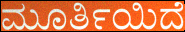
ಮೂರ್ತಿಯಿದೆ